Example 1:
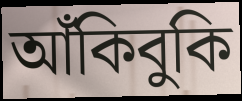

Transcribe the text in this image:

আঁকিবুকি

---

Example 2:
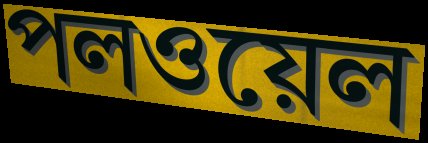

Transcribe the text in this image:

পলওয়েল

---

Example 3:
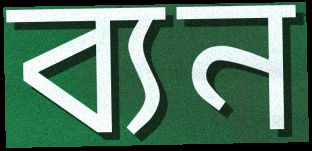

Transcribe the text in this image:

ব্যন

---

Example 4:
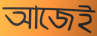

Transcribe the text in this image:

আজেই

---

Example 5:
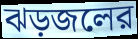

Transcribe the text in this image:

ঝড়জলের